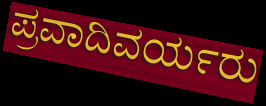
ಪ್ರವಾದಿವರ್ಯರು